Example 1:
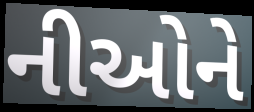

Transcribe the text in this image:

નીઓને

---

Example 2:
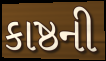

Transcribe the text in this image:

કાષ્ઠની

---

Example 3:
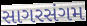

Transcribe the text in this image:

સાગરસંગમ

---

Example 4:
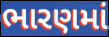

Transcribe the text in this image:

ભારણમાં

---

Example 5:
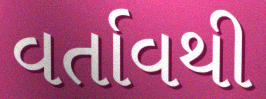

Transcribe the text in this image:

વર્તાવથી